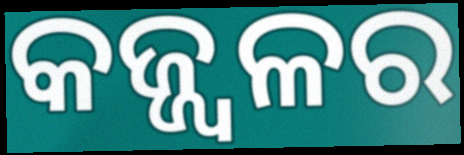
କଜ୍ଜ୍ୱଳର